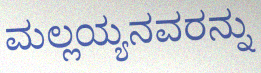
ಮಲ್ಲಯ್ಯನವರನ್ನು